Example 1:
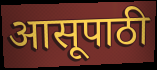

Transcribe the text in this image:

आसूपाठी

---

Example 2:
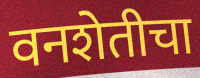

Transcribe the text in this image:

वनशेतीचा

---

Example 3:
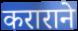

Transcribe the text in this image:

कराराने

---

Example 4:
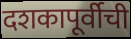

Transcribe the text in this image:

दशकापूर्वीची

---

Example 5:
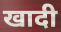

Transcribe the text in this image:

खादी